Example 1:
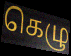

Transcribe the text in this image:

கெழு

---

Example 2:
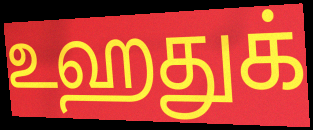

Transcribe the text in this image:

உஹதுக்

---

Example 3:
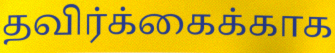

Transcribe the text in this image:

தவிர்க்கைக்காக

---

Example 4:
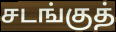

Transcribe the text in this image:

சடங்குத்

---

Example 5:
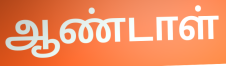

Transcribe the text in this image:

ஆண்டாள்